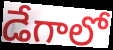
డేగాలో